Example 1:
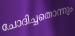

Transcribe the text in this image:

ചോദിച്ചതൊന്നും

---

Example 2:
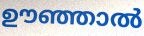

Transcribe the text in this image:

ഊഞ്ഞാൽ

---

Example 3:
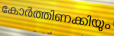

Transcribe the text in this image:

കോർത്തിണക്കിയും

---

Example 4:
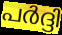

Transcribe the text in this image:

പർദ്ദി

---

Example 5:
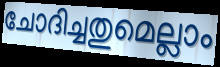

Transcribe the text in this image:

ചോദിച്ചതുമെല്ലാം